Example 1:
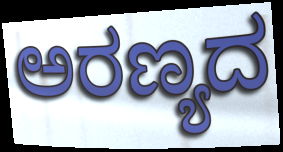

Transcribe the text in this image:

ಅರಣ್ಯದ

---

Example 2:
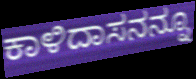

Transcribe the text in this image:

ಕಾಳಿದಾಸನನ್ನೂ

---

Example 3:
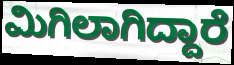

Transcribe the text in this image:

ಮಿಗಿಲಾಗಿದ್ದಾರೆ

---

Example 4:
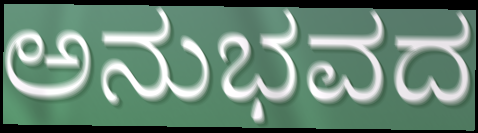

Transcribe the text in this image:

ಅನುಭವದ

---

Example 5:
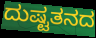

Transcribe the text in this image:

ದುಷ್ಟತನದ